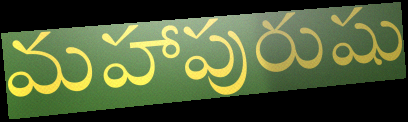
మహాపురుషు